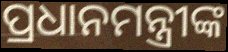
ପ୍ରଧାନମନ୍ତ୍ରୀଙ୍କ